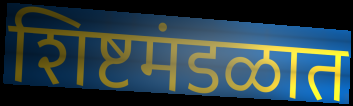
शिष्टमंडळात